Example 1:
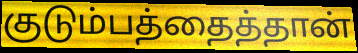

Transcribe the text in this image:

குடும்பத்தைத்தான்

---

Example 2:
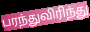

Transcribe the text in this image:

பரந்துவிரிந்து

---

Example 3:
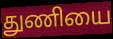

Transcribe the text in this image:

துணியை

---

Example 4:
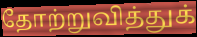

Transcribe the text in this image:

தோற்றுவித்துக்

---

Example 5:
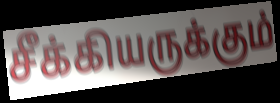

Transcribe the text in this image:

சீக்கியருக்கும்